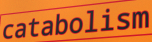
catabolism